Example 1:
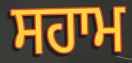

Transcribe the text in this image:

ਸਹਾਮ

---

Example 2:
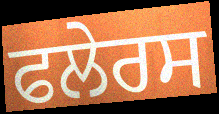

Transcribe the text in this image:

ਫਲੇਰਸ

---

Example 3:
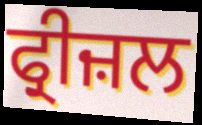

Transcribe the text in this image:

ਫ੍ਰੀਜ਼ਲ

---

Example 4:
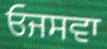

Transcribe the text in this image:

ਓਜਸਵਾ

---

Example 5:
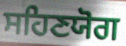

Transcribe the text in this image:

ਸਹਿਣਯੋਗ